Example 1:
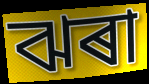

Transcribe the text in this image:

ঝৰা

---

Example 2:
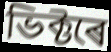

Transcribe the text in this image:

ভিক্টৰে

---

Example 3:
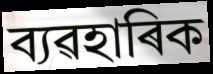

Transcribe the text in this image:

ব্য়ৱহাৰিক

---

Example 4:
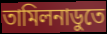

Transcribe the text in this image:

তামিলনাডুতে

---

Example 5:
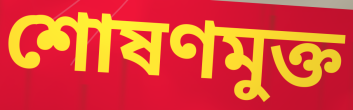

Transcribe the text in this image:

শোষণমুক্ত